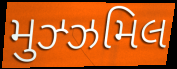
મુઝ્ઝમિલ